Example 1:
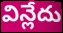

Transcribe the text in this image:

విన్లేదు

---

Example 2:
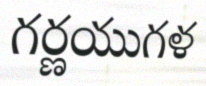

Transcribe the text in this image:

గర్ణయుగళ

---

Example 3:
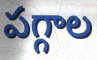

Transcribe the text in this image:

పగ్గాల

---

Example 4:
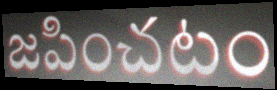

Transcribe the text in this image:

జపించటం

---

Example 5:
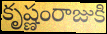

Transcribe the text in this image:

కృష్ణంరాజుకి